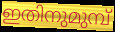
ഇതിനുമുമ്പ്